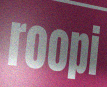
roopi